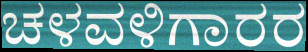
ಚಳವಳಿಗಾರರ